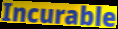
Incurable